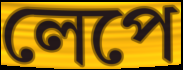
লেপে